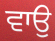
ਵਾਉ